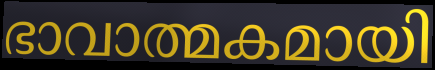
ഭാവാത്മകമായി